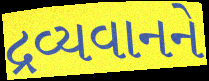
દ્રવ્યવાનને